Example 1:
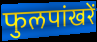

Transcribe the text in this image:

फुलपांखरें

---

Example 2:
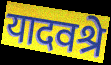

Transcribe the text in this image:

यादवश्रे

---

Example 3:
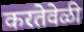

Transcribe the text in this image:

करतेवेळी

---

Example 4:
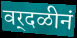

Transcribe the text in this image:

वर्दळीनं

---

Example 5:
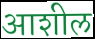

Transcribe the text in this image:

आशील